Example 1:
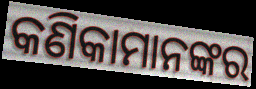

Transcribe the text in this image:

କଣିକାମାନଙ୍କର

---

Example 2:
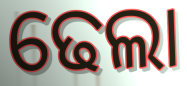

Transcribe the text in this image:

ଢେଲା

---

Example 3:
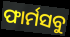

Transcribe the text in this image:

ଫାର୍ମସବୁ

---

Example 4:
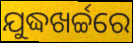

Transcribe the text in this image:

ଯୁଦ୍ଧଖର୍ଚ୍ଚରେ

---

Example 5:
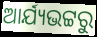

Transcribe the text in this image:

ଆର୍ଯ୍ୟଭଟ୍ଟରୁ